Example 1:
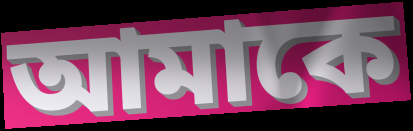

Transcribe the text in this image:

আমাকে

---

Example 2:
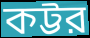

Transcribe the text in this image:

কট্টর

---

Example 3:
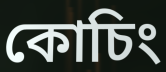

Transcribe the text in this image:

কোচিং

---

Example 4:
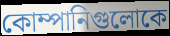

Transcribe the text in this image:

কোম্পানিগুলোকে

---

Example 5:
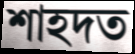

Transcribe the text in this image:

শাহদত